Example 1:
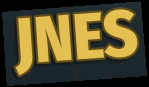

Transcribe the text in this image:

JNES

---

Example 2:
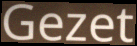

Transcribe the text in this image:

Gezet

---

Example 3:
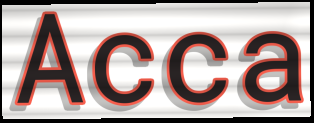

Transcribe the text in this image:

Acca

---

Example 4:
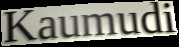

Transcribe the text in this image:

Kaumudi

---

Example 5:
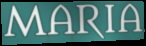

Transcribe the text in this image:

MARIA